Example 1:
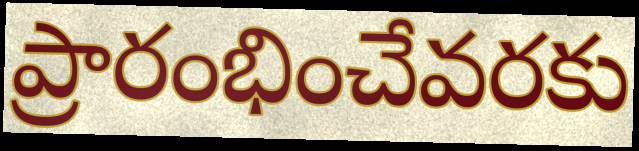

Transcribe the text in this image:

ప్రారంభించేవరకు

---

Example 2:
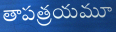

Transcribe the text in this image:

తాపత్రయమూ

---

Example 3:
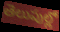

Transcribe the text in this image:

తెలుపుల్లో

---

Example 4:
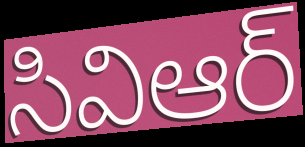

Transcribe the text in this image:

సివిఆర్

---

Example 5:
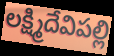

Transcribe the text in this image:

లక్ష్మిదేవిపల్లి